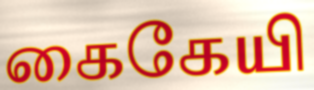
கைகேயி